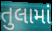
તુલામાં